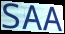
SAA